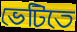
ভেটিতে